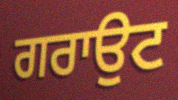
ਗਰਾਉਟ